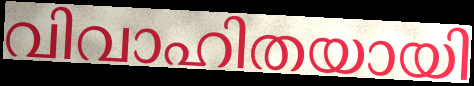
വിവാഹിതയായി